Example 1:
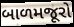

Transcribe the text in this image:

બાળમજૂરો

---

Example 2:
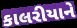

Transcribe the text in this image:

કાલરીયાને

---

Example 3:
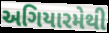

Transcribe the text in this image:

અગિયારમેથી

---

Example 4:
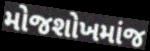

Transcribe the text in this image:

મોજશોખમાંજ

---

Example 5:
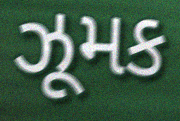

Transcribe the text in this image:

ઝૂમક